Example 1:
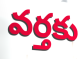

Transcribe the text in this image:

వర్తకు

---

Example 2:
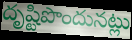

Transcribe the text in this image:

దృష్టిపొందునట్లు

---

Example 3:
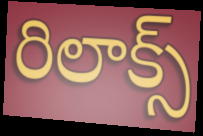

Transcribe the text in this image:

రిలాక్స్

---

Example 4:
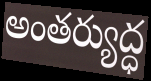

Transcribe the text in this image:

అంతర్యుద్ధ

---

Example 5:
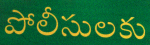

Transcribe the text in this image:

పోలీసులకు